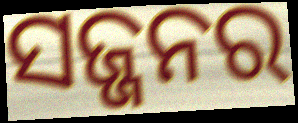
ସଜ୍ଜନର